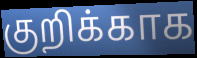
குறிக்காக